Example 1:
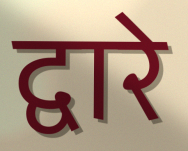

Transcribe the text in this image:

द्वारे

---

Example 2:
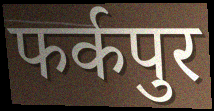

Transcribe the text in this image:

फर्कपुर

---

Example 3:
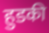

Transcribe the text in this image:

हुडकी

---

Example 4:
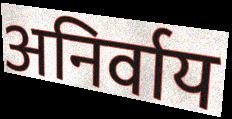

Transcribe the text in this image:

अनिर्वाय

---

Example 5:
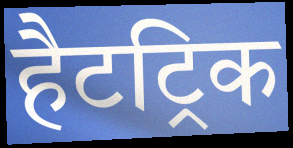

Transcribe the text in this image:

हैटट्रिक